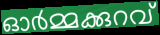
ഓർമ്മക്കുറവ്